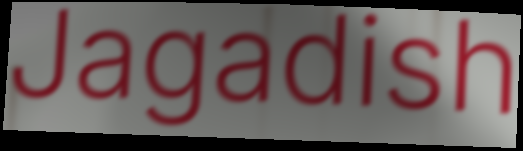
Jagadish